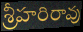
శ్రీహరిరావు